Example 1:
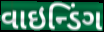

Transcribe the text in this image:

વાઇન્ડિંગ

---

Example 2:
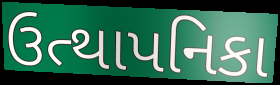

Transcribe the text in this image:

ઉત્થાપનિકા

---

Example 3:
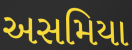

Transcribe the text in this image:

અસમિયા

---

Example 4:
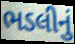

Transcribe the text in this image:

ભડલીનું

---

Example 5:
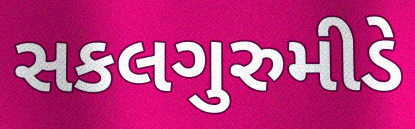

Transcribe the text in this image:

સકલગુરુમીડે